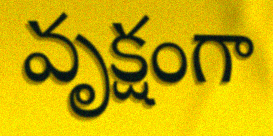
వృక్షంగా